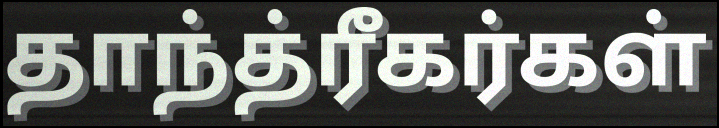
தாந்த்ரீகர்கள்